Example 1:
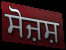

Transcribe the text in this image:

ਸੋਜ਼ਸ਼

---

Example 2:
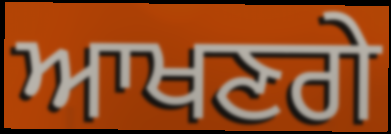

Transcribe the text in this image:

ਆਖਣਗੇ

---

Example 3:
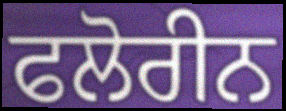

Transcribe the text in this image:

ਫਲੋਰੀਨ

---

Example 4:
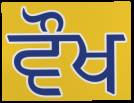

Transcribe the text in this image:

ਵੌਖ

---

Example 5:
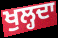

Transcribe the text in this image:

ਖੁਲ੍ਹਦਾ